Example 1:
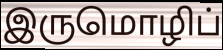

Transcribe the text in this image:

இருமொழிப்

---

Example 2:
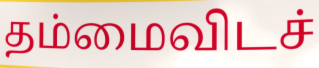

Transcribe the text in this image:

தம்மைவிடச்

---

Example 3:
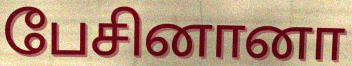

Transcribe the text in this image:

பேசினானா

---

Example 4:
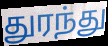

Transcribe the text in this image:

துரந்து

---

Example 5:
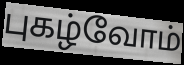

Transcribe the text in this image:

புகழ்வோம்